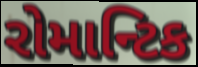
રોમાન્ટિક